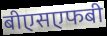
बीएसएफबी